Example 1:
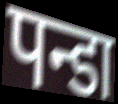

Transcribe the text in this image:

पन्डा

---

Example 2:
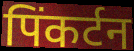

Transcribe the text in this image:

पिंकर्टन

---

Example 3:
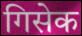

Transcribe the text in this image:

गिसेक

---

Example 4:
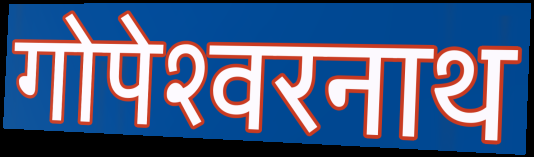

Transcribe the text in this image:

गोपेश्वरनाथ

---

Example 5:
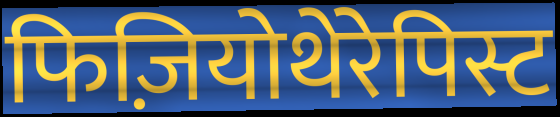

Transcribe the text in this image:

फिज़ियोथेरेपिस्ट